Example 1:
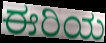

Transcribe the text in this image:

ಈರಿಯ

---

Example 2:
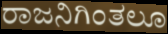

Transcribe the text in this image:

ರಾಜನಿಗಿಂತಲೂ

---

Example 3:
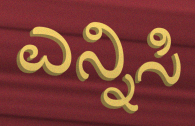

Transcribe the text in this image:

ಎನ್ನಿಸಿ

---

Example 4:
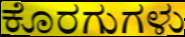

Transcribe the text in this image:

ಕೊರಗುಗಳು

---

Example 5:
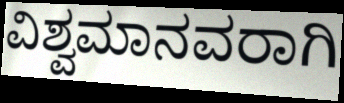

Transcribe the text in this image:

ವಿಶ್ವಮಾನವರಾಗಿ